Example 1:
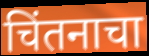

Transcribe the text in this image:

चिंतनाचा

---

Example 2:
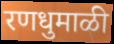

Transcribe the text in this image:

रणधुमाळी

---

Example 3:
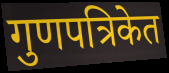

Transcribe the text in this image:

गुणपत्रिकेत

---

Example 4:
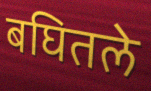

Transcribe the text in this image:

बघितले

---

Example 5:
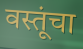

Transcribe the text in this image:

वस्तूंचा